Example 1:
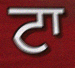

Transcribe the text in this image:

ਟਾ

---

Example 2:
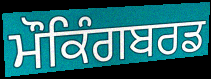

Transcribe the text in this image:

ਮੌਕਿੰਗਬਰਡ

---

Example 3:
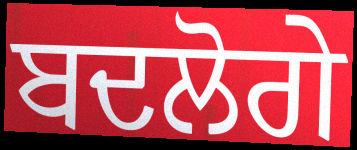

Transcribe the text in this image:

ਬਦਲੋਗੇ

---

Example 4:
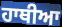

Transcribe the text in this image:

ਹਾਥੀਆ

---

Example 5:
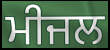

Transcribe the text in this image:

ਮੀਜਲ